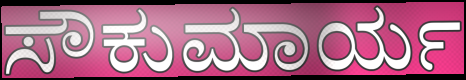
ಸೌಕುಮಾರ್ಯ